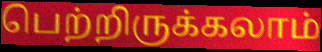
பெற்றிருக்கலாம்